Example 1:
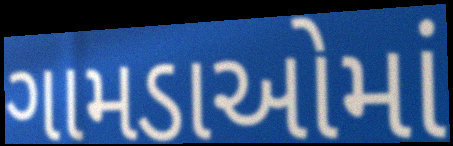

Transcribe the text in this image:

ગામડાઓમાં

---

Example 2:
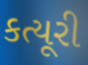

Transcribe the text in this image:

કત્યૂરી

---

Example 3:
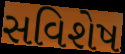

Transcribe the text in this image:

સવિશેષ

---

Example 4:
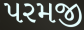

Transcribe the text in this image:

પરમજી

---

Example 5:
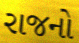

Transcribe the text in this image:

રાજનો